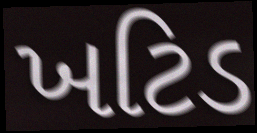
ખટિડ